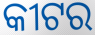
କୀଟର